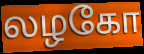
லழகோ